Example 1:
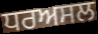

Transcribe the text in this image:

ਧਰਅਸਲ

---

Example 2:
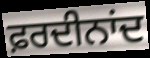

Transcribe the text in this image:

ਫ਼ਰਦੀਨਾਂਦ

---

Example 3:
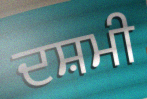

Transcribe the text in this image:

ਦਸ਼ਮੀ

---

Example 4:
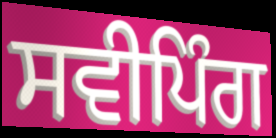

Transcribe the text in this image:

ਸਵੀਪਿੰਗ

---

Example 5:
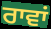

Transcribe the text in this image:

ਰਾਵਾਂ